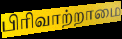
பிரிவாற்றாமை